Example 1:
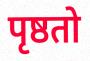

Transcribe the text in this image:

पृष्ठतो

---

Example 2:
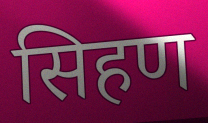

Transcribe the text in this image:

सिहण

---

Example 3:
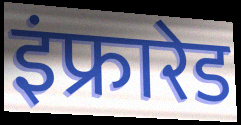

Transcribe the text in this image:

इंफ्रारेड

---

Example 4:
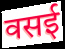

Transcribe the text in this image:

वसई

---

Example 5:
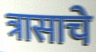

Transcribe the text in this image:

त्रासाचे